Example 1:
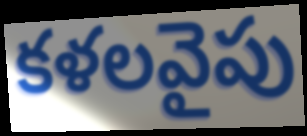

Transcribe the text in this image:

కళలవైపు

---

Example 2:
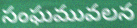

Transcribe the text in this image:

సంఘమువలన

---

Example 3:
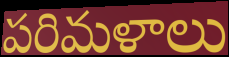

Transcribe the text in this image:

పరిమళాలు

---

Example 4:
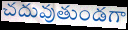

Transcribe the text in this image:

చదువుతుండగా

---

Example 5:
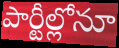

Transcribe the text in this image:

పార్టీల్లోనూ